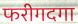
फरीगदगा